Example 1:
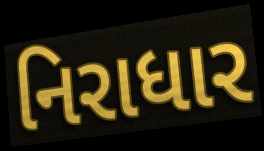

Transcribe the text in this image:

નિરાધાર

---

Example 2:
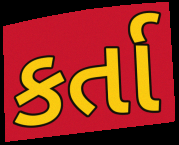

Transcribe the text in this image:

કર્તા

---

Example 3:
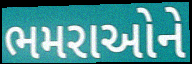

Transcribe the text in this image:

ભમરાઓને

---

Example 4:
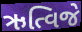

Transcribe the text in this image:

ઋત્વિજે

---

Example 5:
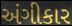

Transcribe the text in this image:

અંગીકાર